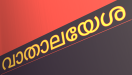
വാതാലയേശ